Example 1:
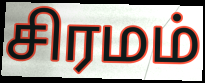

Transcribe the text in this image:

சிரமம்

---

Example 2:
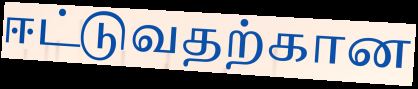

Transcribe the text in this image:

ஈட்டுவதற்கான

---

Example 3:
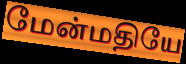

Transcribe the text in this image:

மேன்மதியே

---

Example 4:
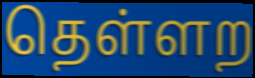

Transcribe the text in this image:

தெள்ளற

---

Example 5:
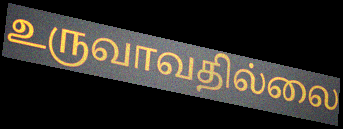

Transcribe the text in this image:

உருவாவதில்லை